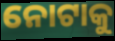
ନୋଟାକୁ